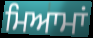
ਮਿਆਮਾਂ